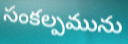
సంకల్పమును